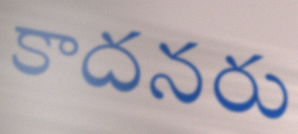
కాదనరు